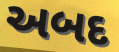
અબદ